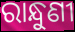
ରାନ୍ଧୁଣୀ